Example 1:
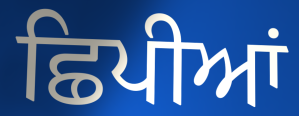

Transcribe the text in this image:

ਛਿਪੀਆਂ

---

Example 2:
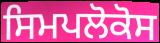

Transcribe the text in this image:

ਸਿਮਪਲੋਕੋਸ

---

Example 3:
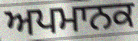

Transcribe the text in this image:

ਅਪਮਾਨਕ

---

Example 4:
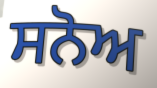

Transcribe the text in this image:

ਸਨੋਅ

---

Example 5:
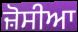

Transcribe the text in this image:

ਜ਼ੋਸੀਆ